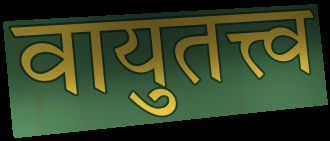
वायुतत्त्व